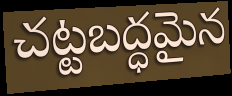
చట్టబద్ధమైన